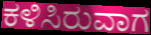
ಕಳಿಸಿರುವಾಗ